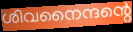
ശിവനൈന്ദന്റെ